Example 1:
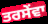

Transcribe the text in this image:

ਤਰਸੇਂਵਾ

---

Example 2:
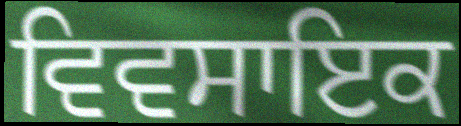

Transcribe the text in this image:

ਵਿਵਸਾਇਕ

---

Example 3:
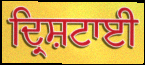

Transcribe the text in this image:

ਦ੍ਰਿਸ਼ਟਾਈ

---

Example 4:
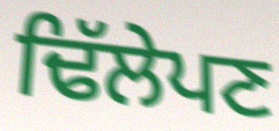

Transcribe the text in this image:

ਢਿੱਲੇਪਣ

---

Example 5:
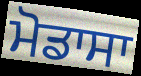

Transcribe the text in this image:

ਮੋਡਾਸਾ